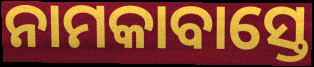
ନାମକାବାସ୍ତେ